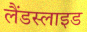
लैंडस्लाइड